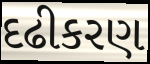
દઢીકરણ